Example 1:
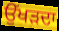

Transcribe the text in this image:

ਉੱਖੜਦਾ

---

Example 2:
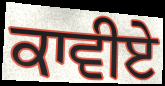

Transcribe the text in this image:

ਕਾਵੀਏ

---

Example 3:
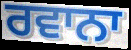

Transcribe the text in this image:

ਰਵਾਨਾ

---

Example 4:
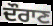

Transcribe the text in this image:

ਦੌਰਾਣ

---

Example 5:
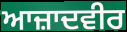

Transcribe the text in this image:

ਆਜ਼ਾਦਵੀਰ